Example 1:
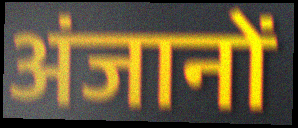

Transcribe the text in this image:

अंजानों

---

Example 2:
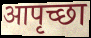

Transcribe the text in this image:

आपृच्छा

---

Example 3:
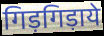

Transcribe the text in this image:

गिड़गिड़ाये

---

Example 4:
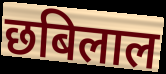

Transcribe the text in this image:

छबिलाल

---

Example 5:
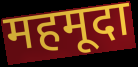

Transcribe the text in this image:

महमूदा